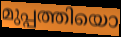
മുപ്പത്തിയൊ